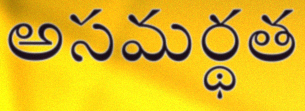
అసమర్థత